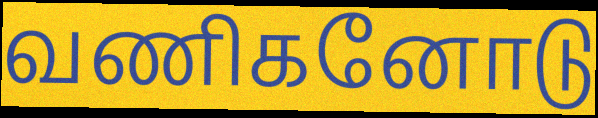
வணிகனோடு